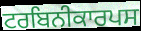
ਟਰਬਿਨੀਕਾਰਪਸ